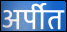
अर्पीत